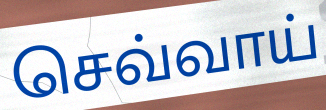
செவ்வாய்